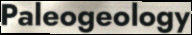
Paleogeology